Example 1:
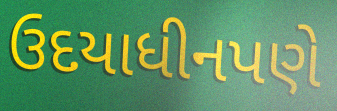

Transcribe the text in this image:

ઉદયાધીનપણે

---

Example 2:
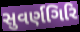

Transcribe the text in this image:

સુવર્ણગિરિ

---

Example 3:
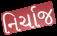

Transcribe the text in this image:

નિર્ચાજ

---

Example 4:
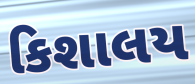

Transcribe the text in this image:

કિશાલય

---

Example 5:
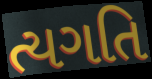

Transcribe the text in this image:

ત્યગતિ